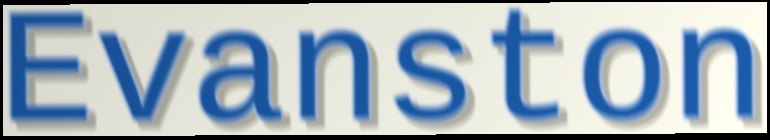
Evanston